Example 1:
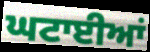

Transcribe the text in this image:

ਘਟਾਈਆਂ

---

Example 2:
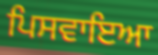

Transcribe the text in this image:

ਪਿਸਵਾਇਆ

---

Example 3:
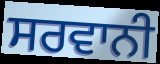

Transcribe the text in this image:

ਸਰਵਾਨੀ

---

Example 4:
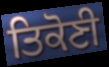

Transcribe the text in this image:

ਤਿਕੋਣੀ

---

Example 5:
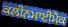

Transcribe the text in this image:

ਕਲੀਨਮਾਈਮੈਕ